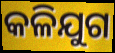
କଳିଯୁଗ